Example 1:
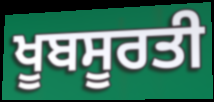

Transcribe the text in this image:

ਖੂਬਸੂਰਤੀ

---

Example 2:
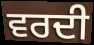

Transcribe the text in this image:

ਵਰਦੀ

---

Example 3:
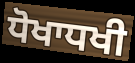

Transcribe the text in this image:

ਧੋਖਾਧਖੀ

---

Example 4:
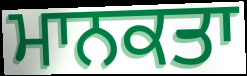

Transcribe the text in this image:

ਮਾਨਕਤਾ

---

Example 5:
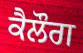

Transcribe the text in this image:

ਕੈਲੌਗ